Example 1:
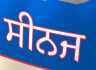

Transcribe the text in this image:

ਸੀਨਜ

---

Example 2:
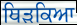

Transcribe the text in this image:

ਥਿੜਕਿਆ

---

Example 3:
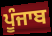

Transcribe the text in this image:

ਪੂੰਜਾਬ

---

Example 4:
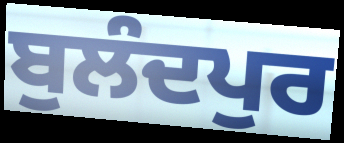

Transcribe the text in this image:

ਬੁਲੰਦਪੁਰ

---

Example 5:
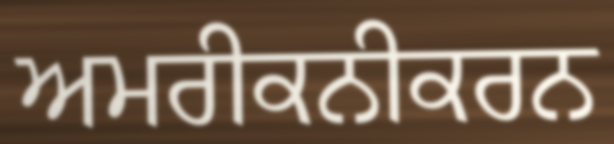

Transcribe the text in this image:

ਅਮਰੀਕਨੀਕਰਨ